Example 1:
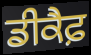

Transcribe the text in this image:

ਡੀਕੈਫ਼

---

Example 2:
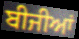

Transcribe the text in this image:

ਬੀਜੀਆਂ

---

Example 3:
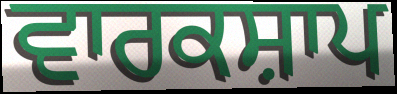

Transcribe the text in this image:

ਵਾਰਕਸ਼ਾਪ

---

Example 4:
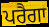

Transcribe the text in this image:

ਪਰੈਗਾ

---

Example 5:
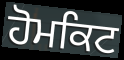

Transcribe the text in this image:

ਹੋਮਕਿਟ